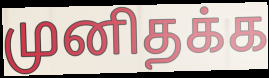
முனிதக்க